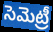
సెమెట్రీ